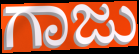
ಗಾಜು